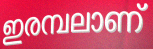
ഇരമ്പലാണ്